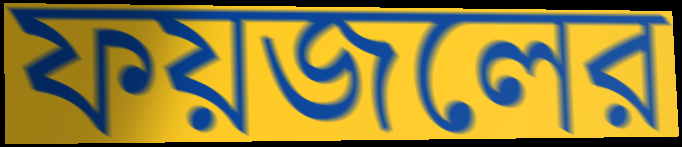
ফয়জলের